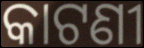
କାଟଣୀ